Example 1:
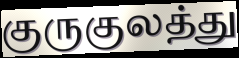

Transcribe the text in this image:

குருகுலத்து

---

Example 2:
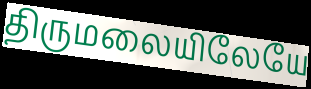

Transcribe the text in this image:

திருமலையிலேயே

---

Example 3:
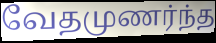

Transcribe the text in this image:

வேதமுணர்ந்த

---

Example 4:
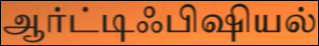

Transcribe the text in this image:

ஆர்ட்டிஃபிஷியல்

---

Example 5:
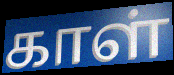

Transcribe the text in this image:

காள்